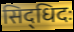
सिद्धिदः